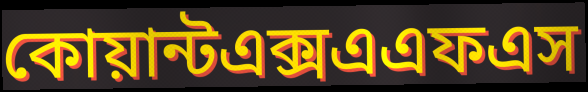
কোয়ান্টএক্সএএফএস